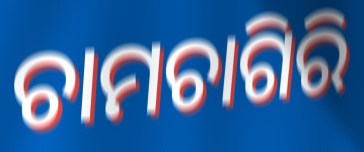
ଚାମଚାଗିରି